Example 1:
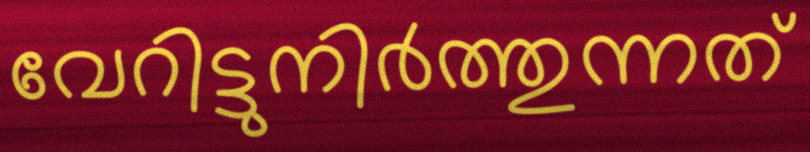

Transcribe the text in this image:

വേറിട്ടുനിർത്തുന്നത്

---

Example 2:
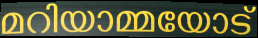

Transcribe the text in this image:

മറിയാമ്മയോട്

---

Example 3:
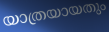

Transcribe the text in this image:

യാത്രയായതും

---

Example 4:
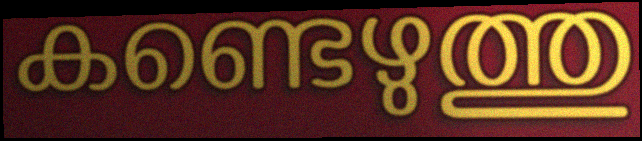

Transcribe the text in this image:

കണ്ടെഴുത്തു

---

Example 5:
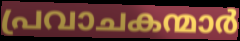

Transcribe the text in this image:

പ്രവാചകന്മാർ